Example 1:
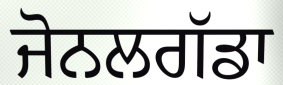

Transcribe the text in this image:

ਜੋਨਲਗੱਡਾ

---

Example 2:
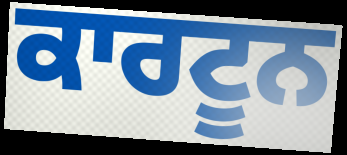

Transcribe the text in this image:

ਕਾਰਟੂਨ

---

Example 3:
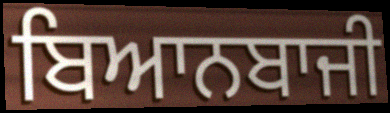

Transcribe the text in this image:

ਬਿਆਨਬਾਜੀ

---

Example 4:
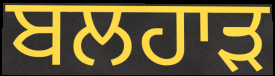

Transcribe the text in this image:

ਬਲਹਾੜ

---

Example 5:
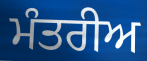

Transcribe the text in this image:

ਮੰਤਰੀਅ